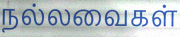
நல்லவைகள்